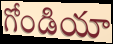
గోండియా